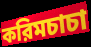
করিমচাচা